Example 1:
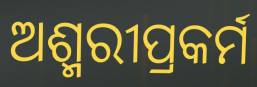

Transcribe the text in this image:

ଅଶ୍ମରୀପ୍ରକର୍ମ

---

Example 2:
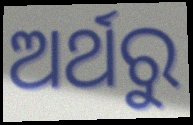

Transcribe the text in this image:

ଅର୍ଥରୁ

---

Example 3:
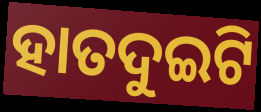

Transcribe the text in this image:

ହାତଦୁଇଟି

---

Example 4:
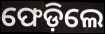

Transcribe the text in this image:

ଫେଡ଼ିଲେ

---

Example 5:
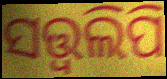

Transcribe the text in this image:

ସତ୍ତ୍ୱଲିପି